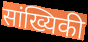
सांख्यिकी